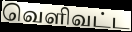
வெளிவட்ட